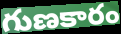
గుణకారం